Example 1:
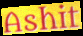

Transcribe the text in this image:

Ashit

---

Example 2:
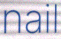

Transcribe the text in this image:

nail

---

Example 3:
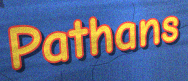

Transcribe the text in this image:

Pathans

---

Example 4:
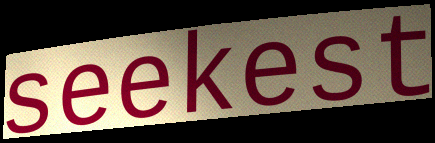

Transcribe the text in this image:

seekest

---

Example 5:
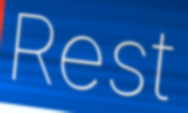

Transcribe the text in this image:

Rest